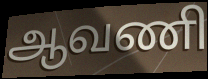
ஆவணி